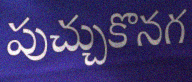
పుచ్చుకొనగ